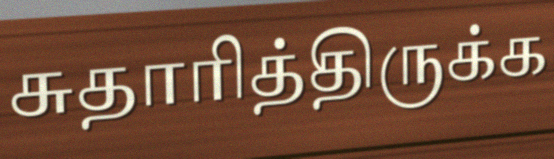
சுதாரித்திருக்க